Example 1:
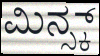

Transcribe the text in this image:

ಮಿನ್ಸ್ಕ್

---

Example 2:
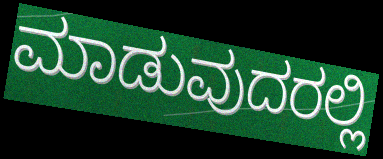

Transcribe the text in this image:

ಮಾಡುವುದರಲ್ಲಿ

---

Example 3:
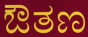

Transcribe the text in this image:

ಔತಣ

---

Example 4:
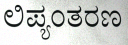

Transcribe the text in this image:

ಲಿಪ್ಯಂತರಣ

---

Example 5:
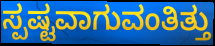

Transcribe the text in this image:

ಸ್ಪಷ್ಟವಾಗುವಂತಿತ್ತು